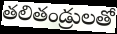
తలితండ్రులతో